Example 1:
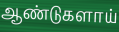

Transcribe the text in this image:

ஆண்டுகளாய்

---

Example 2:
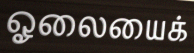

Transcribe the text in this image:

ஓலையைக்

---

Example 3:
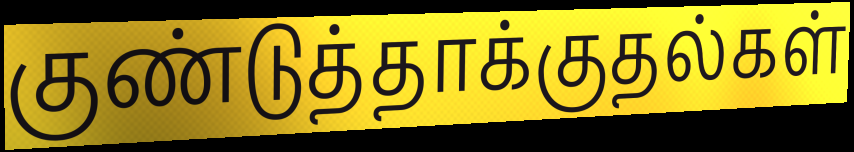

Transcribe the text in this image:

குண்டுத்தாக்குதல்கள்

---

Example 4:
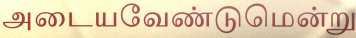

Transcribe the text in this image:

அடையவேண்டுமென்று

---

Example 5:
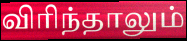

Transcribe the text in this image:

விரிந்தாலும்